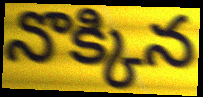
నొక్కిన